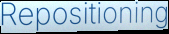
Repositioning